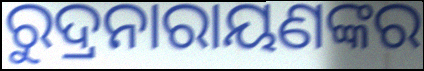
ରୁଦ୍ରନାରାୟଣଙ୍କର